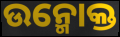
ଉନ୍ମୋକ୍ତ